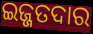
ଇଜ୍ଜତଦାର